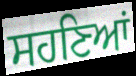
ਸਹਣਿਆਂ